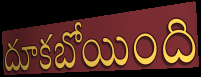
దూకబోయింది